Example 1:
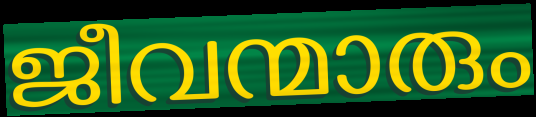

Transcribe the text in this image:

ജീവന്മാരും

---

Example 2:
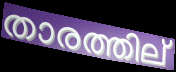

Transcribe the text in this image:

താരത്തില്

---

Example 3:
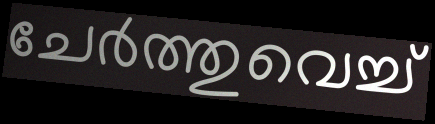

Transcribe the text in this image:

ചേർത്തുവെച്ച്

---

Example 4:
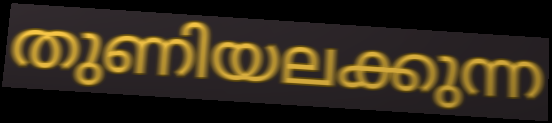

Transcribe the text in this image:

തുണിയലക്കുന്ന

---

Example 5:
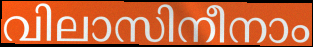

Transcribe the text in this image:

വിലാസിനീനാം